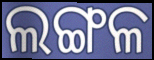
ଲଙ୍ଗଳ